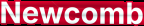
Newcomb